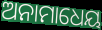
ଅନାମାଧେୟ